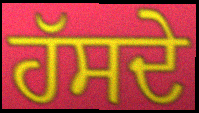
ਹੱਸਦੇ